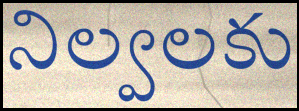
నిల్వలకు